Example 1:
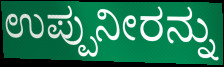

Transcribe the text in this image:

ಉಪ್ಪುನೀರನ್ನು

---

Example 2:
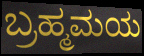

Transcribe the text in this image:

ಬ್ರಹ್ಮಮಯ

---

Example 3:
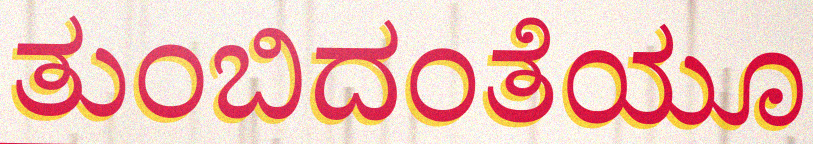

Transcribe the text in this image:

ತುಂಬಿದಂತೆಯೂ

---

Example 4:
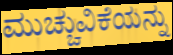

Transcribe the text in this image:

ಮುಚ್ಚುವಿಕೆಯನ್ನು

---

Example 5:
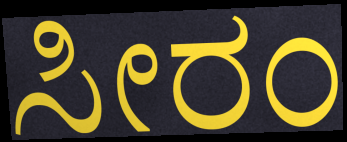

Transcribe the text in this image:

ಸೀರಂ